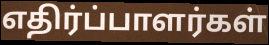
எதிர்ப்பாளர்கள்